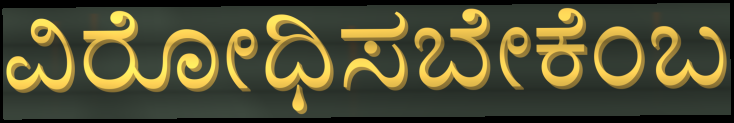
ವಿರೋಧಿಸಬೇಕೆಂಬ